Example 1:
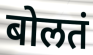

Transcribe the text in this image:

बोलतं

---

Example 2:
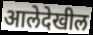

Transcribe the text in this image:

आलेदेखील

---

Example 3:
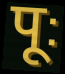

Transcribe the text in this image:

पूः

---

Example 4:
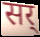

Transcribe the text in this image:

सर्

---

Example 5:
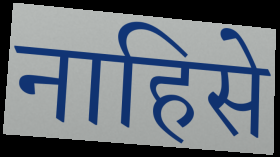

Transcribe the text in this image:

नाहिसे